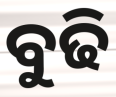
ବୁଢି